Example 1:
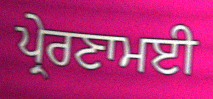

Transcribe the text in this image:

ਪ੍ਰੇਰਣਾਮਈ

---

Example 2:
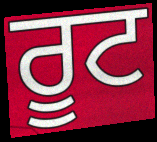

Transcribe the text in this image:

ਰੂਟ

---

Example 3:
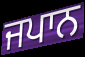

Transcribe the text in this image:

ਜਪਾਨ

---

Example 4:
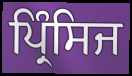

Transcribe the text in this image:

ਪ੍ਰਿੰਸਿਜ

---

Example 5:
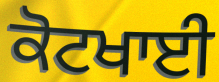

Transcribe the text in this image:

ਕੋਟਖਾਈ